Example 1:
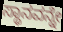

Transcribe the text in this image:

ಸ್ಥಾನವನ್ನೇ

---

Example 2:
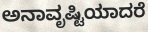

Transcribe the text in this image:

ಅನಾವೃಷ್ಟಿಯಾದರೆ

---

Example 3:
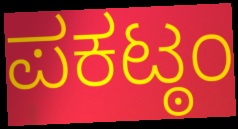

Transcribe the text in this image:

ಪಕಟ್ಠಂ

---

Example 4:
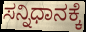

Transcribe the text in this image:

ಸನ್ನಿಧಾನಕ್ಕೆ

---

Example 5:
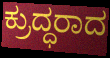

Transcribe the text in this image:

ಕ್ರುದ್ಧರಾದ